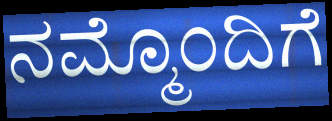
ನಮ್ಮೊಂದಿಗೆ